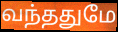
வந்ததுமே